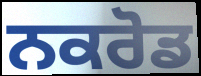
ਨਕਰੋਡ